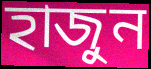
হাজুন